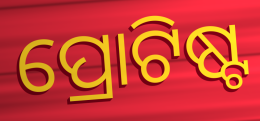
ପ୍ରୋଟିଷ୍ଟ